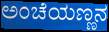
ಅಂಚೆಯಣ್ಣನ